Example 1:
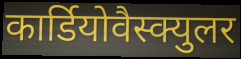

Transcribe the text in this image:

कार्डियोवैस्क्युलर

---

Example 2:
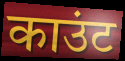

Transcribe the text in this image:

काउंट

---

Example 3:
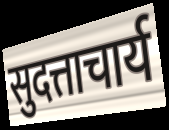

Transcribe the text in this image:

सुदत्ताचार्य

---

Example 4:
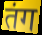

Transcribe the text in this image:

तंग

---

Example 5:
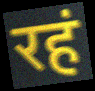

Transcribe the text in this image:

रहं